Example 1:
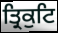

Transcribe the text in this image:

ਤ੍ਰਿਕੁਟਿ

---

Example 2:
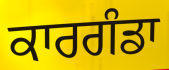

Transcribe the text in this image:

ਕਾਰਗੰਡਾ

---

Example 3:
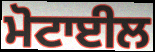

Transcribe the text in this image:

ਮੋਟਾਈਲ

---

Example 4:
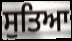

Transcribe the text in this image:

ਸੁਤਿਆ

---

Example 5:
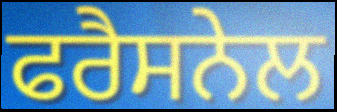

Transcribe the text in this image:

ਫਰੈਸਨੇਲ